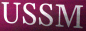
USSM